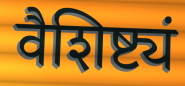
वैशिष्ट्यं